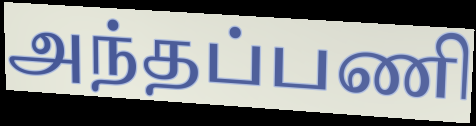
அந்தப்பணி